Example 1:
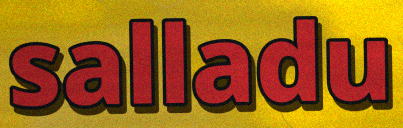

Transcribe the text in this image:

salladu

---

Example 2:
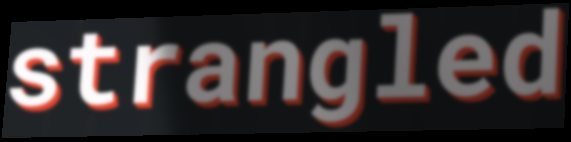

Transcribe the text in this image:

strangled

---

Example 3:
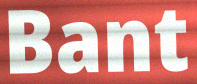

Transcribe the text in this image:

Bant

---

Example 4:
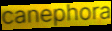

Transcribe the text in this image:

canephora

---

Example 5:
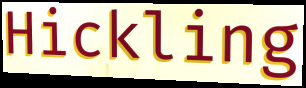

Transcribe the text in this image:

Hickling